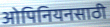
ओपिनियनसाठी